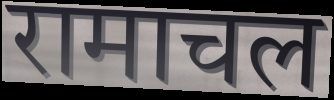
रामाचल